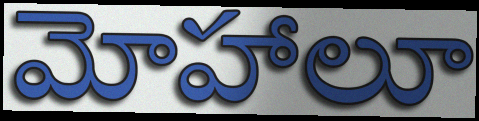
మోహాలూ